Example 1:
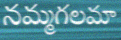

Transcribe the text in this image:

నమ్మగలమా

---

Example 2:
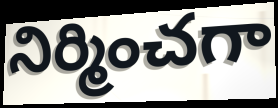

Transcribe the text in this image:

నిర్మించగా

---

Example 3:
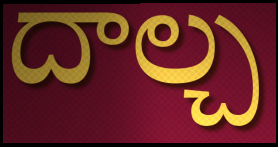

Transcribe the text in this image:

దాల్చ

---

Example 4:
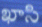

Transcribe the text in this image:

ఖాసి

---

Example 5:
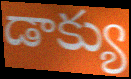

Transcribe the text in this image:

డాక్యు